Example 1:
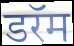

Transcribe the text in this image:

डरॅम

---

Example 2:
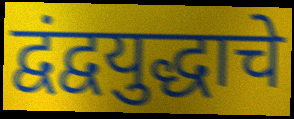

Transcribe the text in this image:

द्वंद्वयुद्धाचे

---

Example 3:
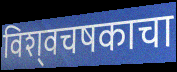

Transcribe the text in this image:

विश्वचषकाचा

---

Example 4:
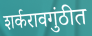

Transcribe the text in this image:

शर्करावगुंठीत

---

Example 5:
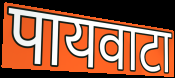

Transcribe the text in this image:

पायवाटा